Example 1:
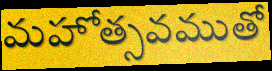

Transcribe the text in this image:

మహోత్సవముతో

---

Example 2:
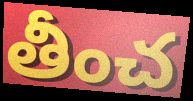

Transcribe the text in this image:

తీంచ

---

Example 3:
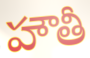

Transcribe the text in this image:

హౌతీ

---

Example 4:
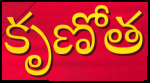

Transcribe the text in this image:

కృణోత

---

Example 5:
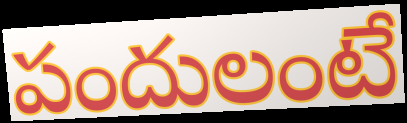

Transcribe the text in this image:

పందులంటే